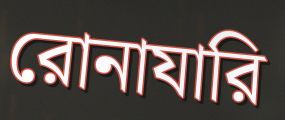
রোনাযারি